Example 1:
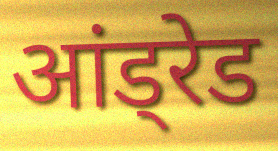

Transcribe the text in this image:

आंड्रेड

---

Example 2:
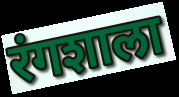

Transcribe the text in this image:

रंगशाला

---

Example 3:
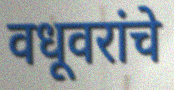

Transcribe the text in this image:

वधूवरांचे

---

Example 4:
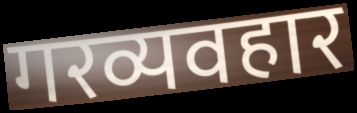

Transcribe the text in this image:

गरव्यवहार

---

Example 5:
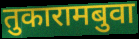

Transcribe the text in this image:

तुकारामबुवा